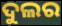
ଦୁଲର